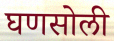
घणसोली